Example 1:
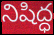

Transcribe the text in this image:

నిషిద్ధ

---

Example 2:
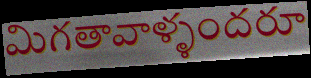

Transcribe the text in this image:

మిగతావాళ్ళందరూ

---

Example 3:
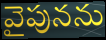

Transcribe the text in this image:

వైపునను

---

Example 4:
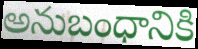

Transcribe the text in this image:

అనుబంధానికి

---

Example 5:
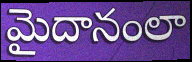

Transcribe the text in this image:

మైదానంలా